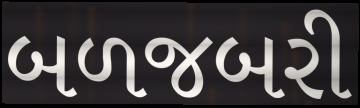
બળજબરી